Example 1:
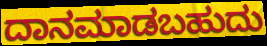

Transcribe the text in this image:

ದಾನಮಾಡಬಹುದು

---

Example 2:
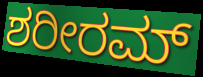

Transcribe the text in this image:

ಶರೀರಮ್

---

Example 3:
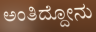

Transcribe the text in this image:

ಅಂತಿದ್ದೋನು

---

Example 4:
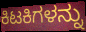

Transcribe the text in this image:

ಕಿಟಕಿಗಳನ್ನು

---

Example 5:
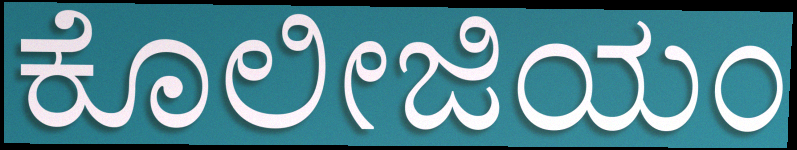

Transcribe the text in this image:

ಕೊಲೀಜಿಯಂ